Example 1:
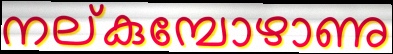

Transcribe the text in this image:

നല്കുമ്പോഴാണു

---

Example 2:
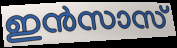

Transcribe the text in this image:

ഇൻസാസ്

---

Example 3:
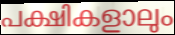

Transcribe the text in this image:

പക്ഷികളാലും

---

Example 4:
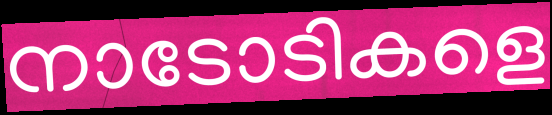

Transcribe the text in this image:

നാടോടികളെ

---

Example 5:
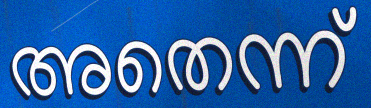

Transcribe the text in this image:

അതെന്ന്